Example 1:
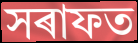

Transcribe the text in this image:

সৰাফত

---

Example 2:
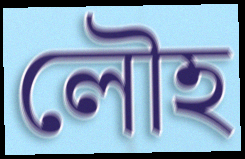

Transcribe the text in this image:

লৌহ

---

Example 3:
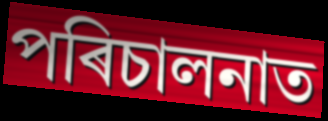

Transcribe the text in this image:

পৰিচালনাত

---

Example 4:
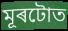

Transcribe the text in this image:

মূৰটোত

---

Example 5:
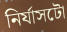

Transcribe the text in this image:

নিৰ্যাসটো